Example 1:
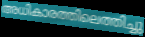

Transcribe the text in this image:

അധികാരത്തിലെത്തിച്ചു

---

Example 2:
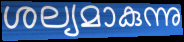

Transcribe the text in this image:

ശല്യമാകുന്നു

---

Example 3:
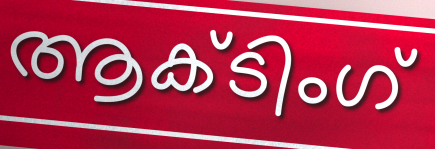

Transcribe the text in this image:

ആക്ടിംഗ്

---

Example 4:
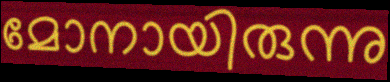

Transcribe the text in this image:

മോനായിരുന്നു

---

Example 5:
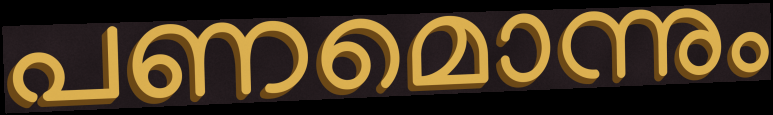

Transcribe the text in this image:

പണമൊന്നും